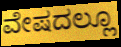
ವೇಷದಲ್ಲೂ